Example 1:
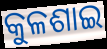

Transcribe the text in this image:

କୁଳଶାଇ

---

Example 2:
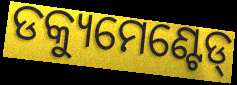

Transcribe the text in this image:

ଡକ୍ୟୁମେଣ୍ଟେଡ୍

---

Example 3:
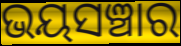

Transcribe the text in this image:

ଭୟସଞ୍ଚାର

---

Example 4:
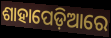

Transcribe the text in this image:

ଶାହାପେଡ଼ିଆରେ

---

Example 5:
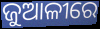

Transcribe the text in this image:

ଜୁଆଳୀରେ